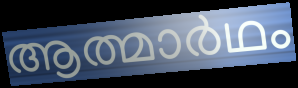
ആത്മാർഥം